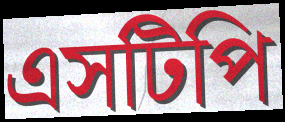
এসটিপি